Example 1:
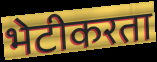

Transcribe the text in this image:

भेटीकरता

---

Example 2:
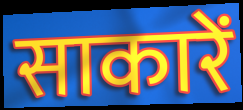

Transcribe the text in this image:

साकारें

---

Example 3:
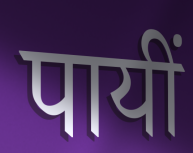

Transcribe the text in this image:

पायीं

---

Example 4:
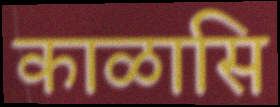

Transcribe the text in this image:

काळासि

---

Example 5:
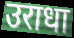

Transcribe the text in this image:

उराधा